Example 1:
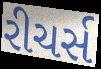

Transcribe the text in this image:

રીચર્સ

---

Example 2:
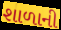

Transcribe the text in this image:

શાળાની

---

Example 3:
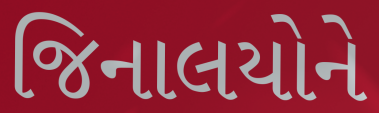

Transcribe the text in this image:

જિનાલયોને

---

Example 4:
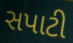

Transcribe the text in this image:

સપાટી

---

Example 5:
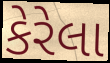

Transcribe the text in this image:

કેરેલા